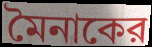
মৈনাকের